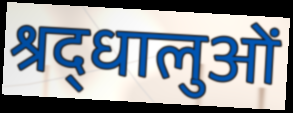
श्रद्धालुओं